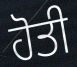
ਹੋਤੀ